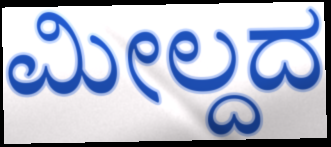
ಮೀಲ್ದದ